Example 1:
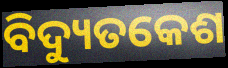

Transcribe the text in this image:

ବିଦ୍ୟୁତକେଶ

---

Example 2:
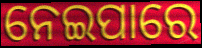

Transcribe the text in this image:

ନେଇପାରେ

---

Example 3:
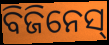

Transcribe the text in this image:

ବିଜିନେସ୍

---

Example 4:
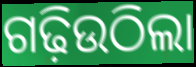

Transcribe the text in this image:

ଗଢ଼ିଉଠିଲା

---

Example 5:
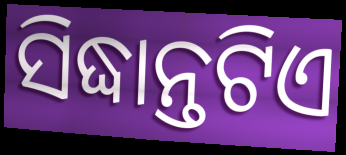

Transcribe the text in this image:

ସିଦ୍ଧାନ୍ତଟିଏ